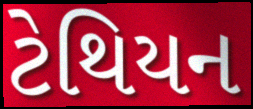
ટેથિયન